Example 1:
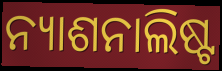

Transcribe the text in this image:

ନ୍ୟାଶନାଲିଷ୍ଟ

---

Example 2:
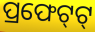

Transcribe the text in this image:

ପ୍ରଫେଟ୍‌ଟ୍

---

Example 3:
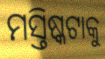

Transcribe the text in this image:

ମସ୍ତିଷ୍କଟାକୁ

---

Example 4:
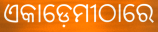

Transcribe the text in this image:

ଏକାଡ଼େମୀଠାରେ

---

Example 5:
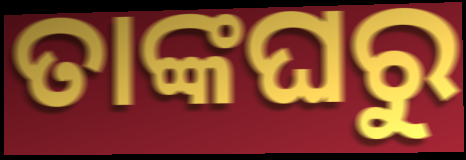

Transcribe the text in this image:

ତାଙ୍କଘରୁ